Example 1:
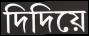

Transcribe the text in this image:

দিদিয়ে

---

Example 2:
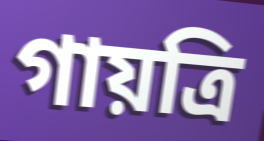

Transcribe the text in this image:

গায়ত্রি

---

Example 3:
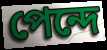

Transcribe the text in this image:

পেন্দে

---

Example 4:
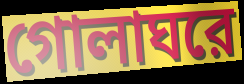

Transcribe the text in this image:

গোলাঘরে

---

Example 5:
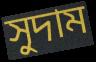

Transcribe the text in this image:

সুদাম